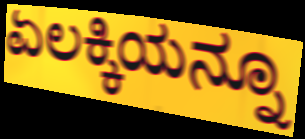
ಏಲಕ್ಕಿಯನ್ನೂ